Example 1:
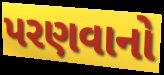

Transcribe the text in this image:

પરણવાનો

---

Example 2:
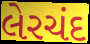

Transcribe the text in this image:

લેરચંદ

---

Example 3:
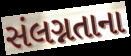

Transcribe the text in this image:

સંલગ્નતાના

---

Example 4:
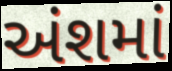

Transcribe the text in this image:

અંશમાં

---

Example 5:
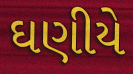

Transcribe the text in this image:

ઘણીયે